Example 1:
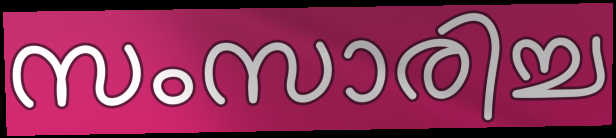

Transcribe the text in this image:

സംസാരിച്ച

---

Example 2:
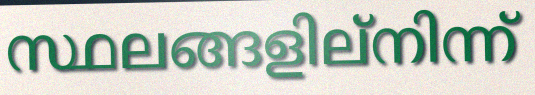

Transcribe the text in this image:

സ്ഥലങ്ങളില്നിന്ന്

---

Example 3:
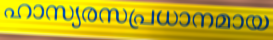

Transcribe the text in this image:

ഹാസ്യരസപ്രധാനമായ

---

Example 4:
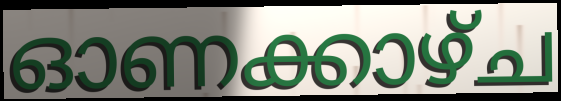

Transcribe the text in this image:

ഓണക്കാഴ്ച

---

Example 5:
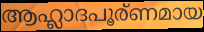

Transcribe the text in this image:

ആഹ്ലാദപൂര്ണമായ